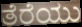
ತೆರೆಯು